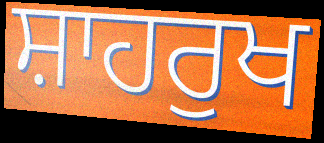
ਸ਼ਾਹਰੁਖ